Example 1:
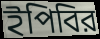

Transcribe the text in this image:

ইপিবির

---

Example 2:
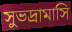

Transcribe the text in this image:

সুভদ্রামাসি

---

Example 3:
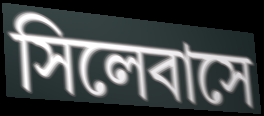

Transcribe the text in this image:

সিলেবাসে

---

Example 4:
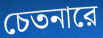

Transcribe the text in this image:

চেতনারে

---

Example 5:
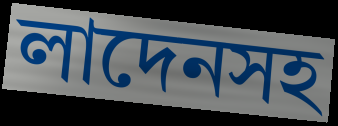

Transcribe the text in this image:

লাদেনসহ